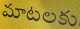
మాటలకు